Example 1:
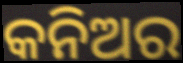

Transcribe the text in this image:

କନିଅର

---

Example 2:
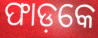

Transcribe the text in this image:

ଫାଡ଼କେ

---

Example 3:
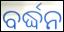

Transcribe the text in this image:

ବର୍ଦ୍ଧନ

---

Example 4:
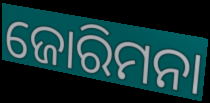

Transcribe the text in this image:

ଜୋରିମନା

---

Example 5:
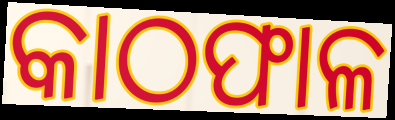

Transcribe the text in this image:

କାଠଫାଳ